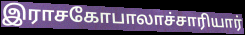
இராசகோபாலாச்சாரியார்